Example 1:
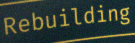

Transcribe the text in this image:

Rebuilding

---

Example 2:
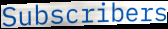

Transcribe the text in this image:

Subscribers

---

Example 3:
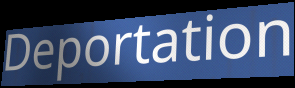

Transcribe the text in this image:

Deportation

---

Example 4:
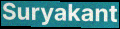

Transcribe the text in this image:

Suryakant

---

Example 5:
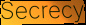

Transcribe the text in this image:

Secrecy